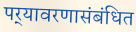
पर्यावरणासंबंधित